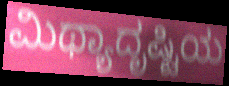
ಮಿಥ್ಯಾದೃಷ್ಟಿಯ